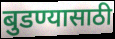
बुडण्यासाठी